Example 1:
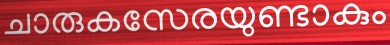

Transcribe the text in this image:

ചാരുകസേരയുണ്ടാകും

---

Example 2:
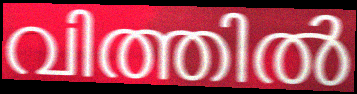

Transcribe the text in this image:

വിത്തിൽ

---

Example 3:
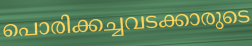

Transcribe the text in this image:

പൊരിക്കച്ചവടക്കാരുടെ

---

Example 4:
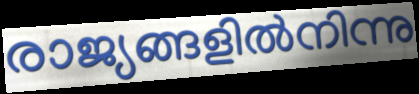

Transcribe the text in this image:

രാജ്യങ്ങളിൽനിന്നു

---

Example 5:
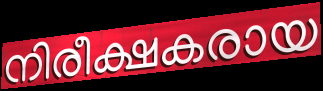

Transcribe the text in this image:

നിരീക്ഷകരായ